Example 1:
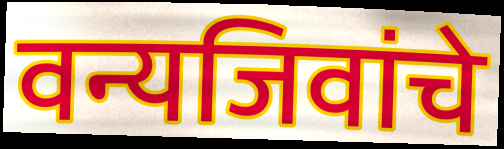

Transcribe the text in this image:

वन्यजिवांचे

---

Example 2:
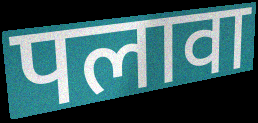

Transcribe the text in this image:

पलावा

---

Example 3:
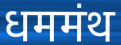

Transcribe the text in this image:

धममंथ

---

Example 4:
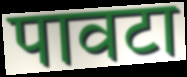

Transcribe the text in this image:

पावटा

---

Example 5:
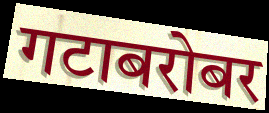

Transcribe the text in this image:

गटाबरोबर